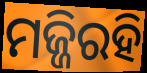
ମଜ୍ଜିରହି